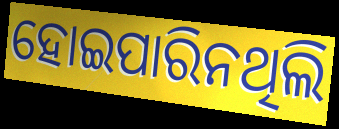
ହୋଇପାରିନଥିଲି